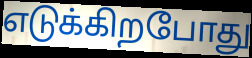
எடுக்கிறபோது